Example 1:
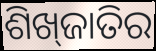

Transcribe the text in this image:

ଶିଖ୍‌ଜାତିର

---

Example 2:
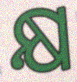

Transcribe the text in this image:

କ୍ଷ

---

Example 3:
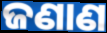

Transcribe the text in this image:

ଜଣାଣ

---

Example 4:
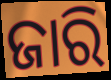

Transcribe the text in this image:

ଜାରି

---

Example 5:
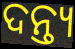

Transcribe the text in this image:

ଦନ୍ତ୍ୟ